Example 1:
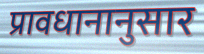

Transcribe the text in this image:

प्रावधानानुसार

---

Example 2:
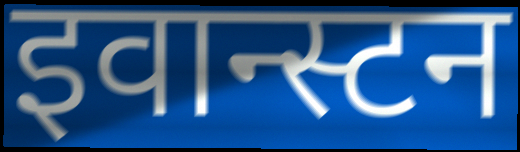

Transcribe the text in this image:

इवान्स्टन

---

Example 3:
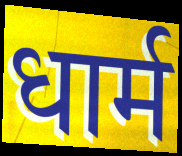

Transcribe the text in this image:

धार्म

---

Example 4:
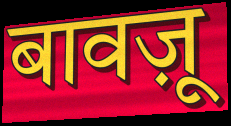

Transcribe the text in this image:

बावज़ू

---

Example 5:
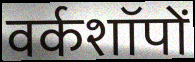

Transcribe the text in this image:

वर्कशॉपों